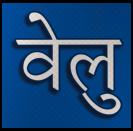
वेलु